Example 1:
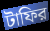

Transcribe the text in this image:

টাফির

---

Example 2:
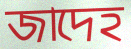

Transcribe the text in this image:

জাদেহ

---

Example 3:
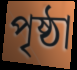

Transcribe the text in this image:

পৃষ্ঠা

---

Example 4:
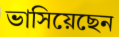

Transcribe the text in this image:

ভাসিয়েছেন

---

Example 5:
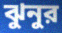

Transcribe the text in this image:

ঝুনুর